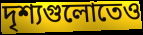
দৃশ্যগুলোতেও